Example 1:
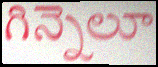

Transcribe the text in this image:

గిన్నెలూ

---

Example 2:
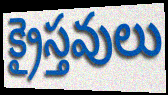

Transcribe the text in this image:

క్రైస్తవులు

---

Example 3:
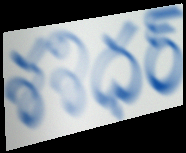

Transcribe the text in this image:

శశిధర్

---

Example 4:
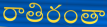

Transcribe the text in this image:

రాతిరంతా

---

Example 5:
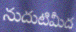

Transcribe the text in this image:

నుదుటిమీద